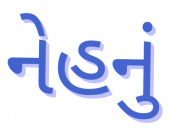
નેહનું